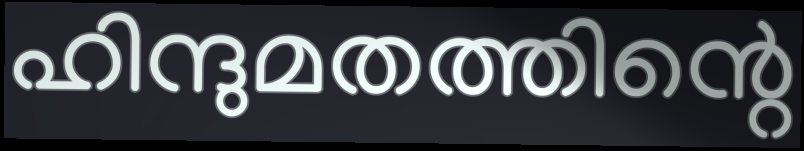
ഹിന്ദുമതത്തിന്റെ